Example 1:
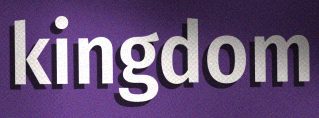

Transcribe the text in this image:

kingdom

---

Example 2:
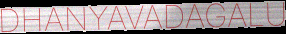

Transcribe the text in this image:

DHANYAVADAGALU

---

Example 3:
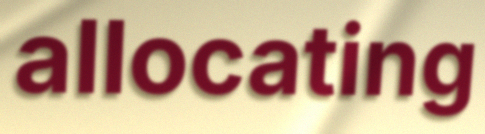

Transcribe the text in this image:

allocating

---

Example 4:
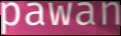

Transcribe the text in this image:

pawan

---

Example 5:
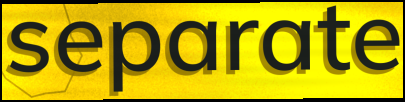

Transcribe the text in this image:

separate